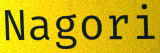
Nagori